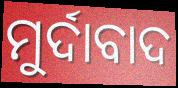
ମୁର୍ଦାବାଦ